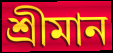
শ্রীমান